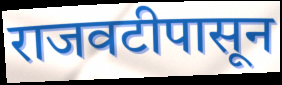
राजवटीपासून